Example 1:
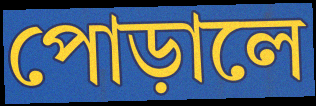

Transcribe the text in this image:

পোড়ালে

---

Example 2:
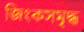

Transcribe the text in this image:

জিংকসমৃদ্ধ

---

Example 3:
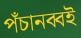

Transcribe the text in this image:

পঁচানব্বই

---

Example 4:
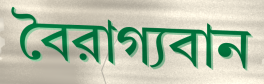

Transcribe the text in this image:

বৈরাগ্যবান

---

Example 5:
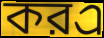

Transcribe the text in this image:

করএ